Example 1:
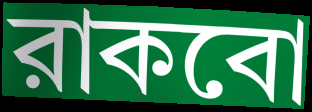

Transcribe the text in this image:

রাকবো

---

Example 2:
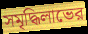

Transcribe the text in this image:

সমৃদ্ধিলাভের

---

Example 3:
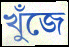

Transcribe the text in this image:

খুঁজে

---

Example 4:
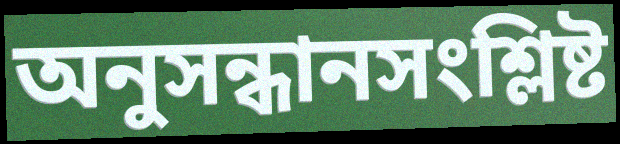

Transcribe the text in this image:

অনুসন্ধানসংশ্লিষ্ট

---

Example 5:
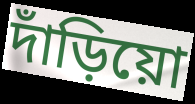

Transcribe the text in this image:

দাঁড়িয়ো